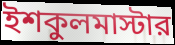
ইশকুলমাস্টার